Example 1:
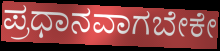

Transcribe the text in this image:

ಪ್ರಧಾನವಾಗಬೇಕೇ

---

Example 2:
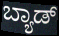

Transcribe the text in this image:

ಬ್ಯಾಡ್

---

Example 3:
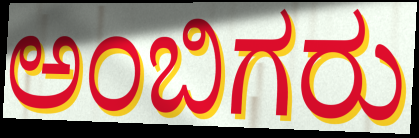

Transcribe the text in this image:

ಅಂಬಿಗರು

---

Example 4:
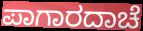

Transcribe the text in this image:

ಪಾಗಾರದಾಚೆ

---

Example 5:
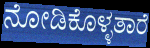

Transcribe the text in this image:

ನೋಡಿಕೊಳ್ಳತಾರೆ